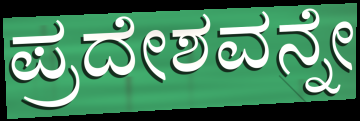
ಪ್ರದೇಶವನ್ನೇ